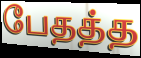
பேதத்த